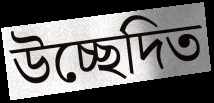
উচ্ছেদিত